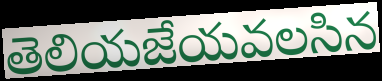
తెలియజేయవలసిన